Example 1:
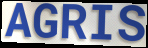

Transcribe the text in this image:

AGRIS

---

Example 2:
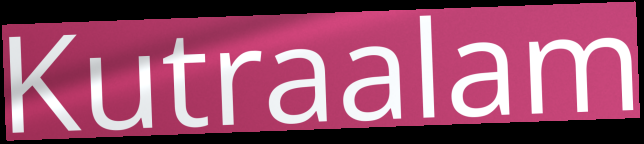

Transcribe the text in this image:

Kutraalam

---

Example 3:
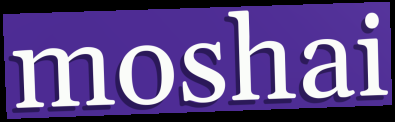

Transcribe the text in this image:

moshai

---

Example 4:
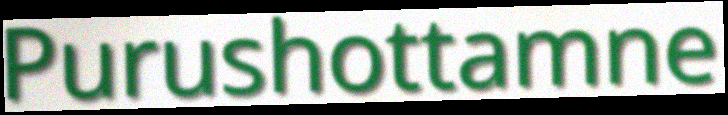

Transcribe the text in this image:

Purushottamne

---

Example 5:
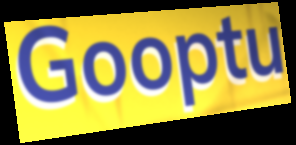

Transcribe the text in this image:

Gooptu